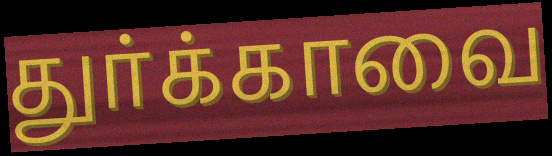
துர்க்காவை